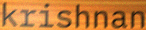
krishnan